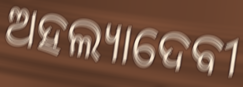
ଅହଲ୍ୟାଦେବୀ